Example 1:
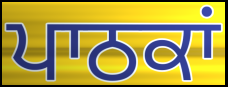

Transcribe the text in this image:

ਪਾਠਕਾਂ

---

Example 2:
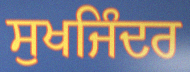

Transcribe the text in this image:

ਸੁਖਜਿੰਦਰ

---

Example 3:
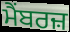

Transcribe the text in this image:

ਮੈਂਬਰਜ਼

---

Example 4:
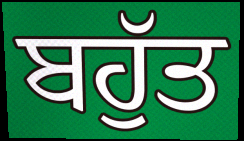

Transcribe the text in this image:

ਬਹੁੱਤ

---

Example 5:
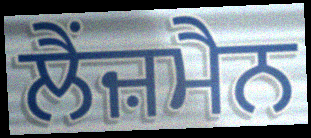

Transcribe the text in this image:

ਲੈਂਜ਼ਮੈਨ